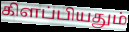
கிளப்பியதும்